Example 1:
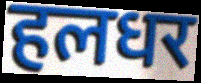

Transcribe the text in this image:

हलधर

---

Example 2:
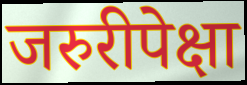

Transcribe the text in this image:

जरुरीपेक्षा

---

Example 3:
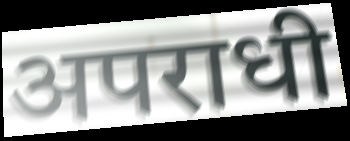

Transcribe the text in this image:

अपराधी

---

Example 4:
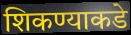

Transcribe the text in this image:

शिकण्याकडे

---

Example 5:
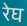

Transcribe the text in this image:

रेघ